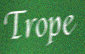
Trope